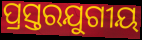
ପ୍ରସ୍ତରଯୁଗୀୟ